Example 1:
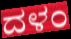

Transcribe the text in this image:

ದಳಂ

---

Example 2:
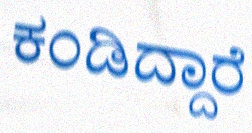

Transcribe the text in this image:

ಕಂಡಿದ್ದಾರೆ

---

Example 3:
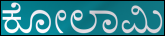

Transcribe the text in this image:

ಕೋಲಾಮಿ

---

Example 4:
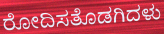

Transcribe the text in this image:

ರೋದಿಸತೊಡಗಿದಳು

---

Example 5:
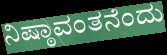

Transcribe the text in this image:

ನಿಷ್ಠಾವಂತನೆಂದು